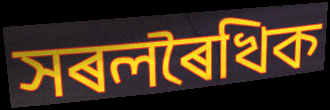
সৰলৰৈখিক